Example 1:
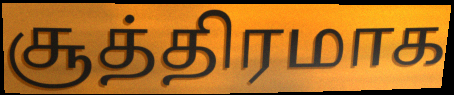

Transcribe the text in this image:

சூத்திரமாக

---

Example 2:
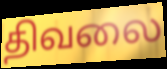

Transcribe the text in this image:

திவலை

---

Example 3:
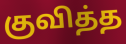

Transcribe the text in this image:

குவித்த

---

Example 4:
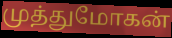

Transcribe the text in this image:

முத்துமோகன்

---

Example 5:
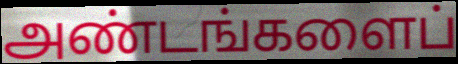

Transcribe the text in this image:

அண்டங்களைப்